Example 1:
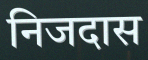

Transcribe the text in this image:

निजदास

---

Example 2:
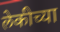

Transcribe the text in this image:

लेकीच्या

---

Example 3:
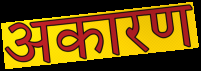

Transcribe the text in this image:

अकारण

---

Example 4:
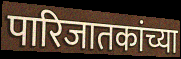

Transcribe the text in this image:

पारिजातकांच्या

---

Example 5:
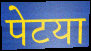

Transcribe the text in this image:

पेटया